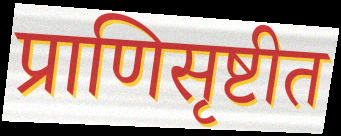
प्राणिसृष्टीत